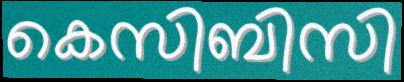
കെസിബിസി